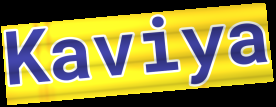
Kaviya